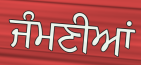
ਜੰਮਣੀਆਂ